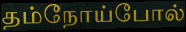
தம்நோய்போல்